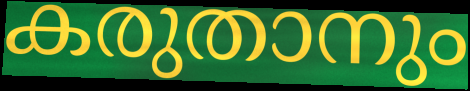
കരുതാനും